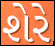
શેરે